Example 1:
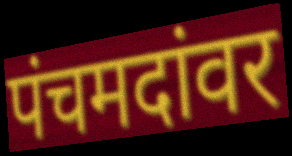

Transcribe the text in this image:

पंचमदांवर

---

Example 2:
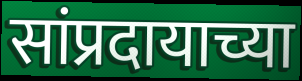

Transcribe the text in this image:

सांप्रदायाच्या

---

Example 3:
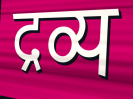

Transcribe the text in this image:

द्रव्य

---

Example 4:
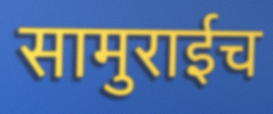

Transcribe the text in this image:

सामुराईच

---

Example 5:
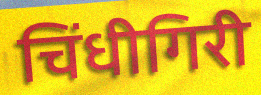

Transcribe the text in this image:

चिंधीगिरी